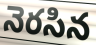
నెరసిన